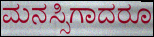
ಮನಸ್ಸಿಗಾದರೂ